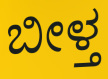
ಬೀಳ್ತ